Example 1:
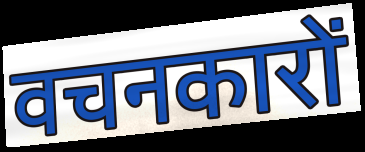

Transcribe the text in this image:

वचनकारों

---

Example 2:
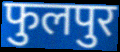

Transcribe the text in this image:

फुलपुर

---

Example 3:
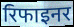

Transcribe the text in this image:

रिफाइनर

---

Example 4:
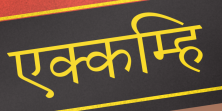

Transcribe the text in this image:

एक्कम्हि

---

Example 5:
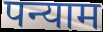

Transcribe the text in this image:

पन्याम